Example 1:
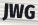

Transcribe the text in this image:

JWG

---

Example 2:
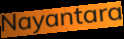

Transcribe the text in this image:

Nayantara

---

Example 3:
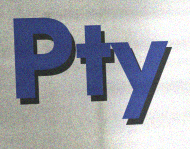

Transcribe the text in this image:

Pty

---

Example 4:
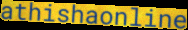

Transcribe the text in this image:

athishaonline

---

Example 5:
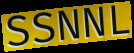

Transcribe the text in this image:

SSNNL